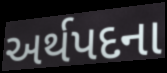
અર્થપદના